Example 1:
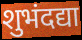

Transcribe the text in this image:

शुभंदद्या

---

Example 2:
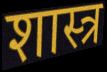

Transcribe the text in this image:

शास्‍त्र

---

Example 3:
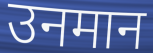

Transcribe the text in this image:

उनमान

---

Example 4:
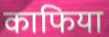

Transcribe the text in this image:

काफिया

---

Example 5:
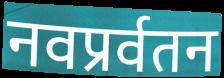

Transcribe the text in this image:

नवप्रर्वतन